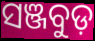
ସଞ୍ଜବୁଡ଼